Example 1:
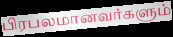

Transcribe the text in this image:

பிரபலமானவர்களும்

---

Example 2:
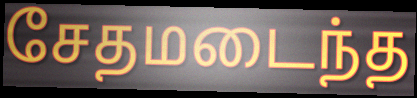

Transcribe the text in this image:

சேதமடைந்த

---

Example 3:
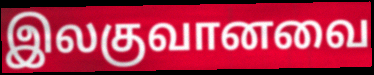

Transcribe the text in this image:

இலகுவானவை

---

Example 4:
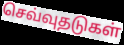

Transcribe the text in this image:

செவ்வுதடுகள்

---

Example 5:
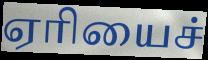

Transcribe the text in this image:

ஏரியைச்